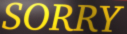
SORRY